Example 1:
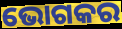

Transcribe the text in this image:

ଭୋଗକର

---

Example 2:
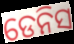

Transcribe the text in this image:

ଡେନିସ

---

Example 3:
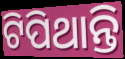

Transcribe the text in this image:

ଟିପିଥାନ୍ତି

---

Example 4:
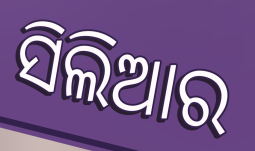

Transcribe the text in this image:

ସିଲିଆର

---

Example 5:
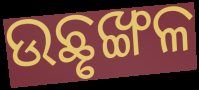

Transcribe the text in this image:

ଉଛୃଙ୍ଖଳ